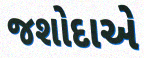
જશોદાએ